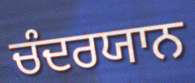
ਚੰਦਰਯਾਨ